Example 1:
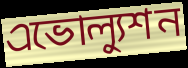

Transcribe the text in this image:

এভোল্যুশন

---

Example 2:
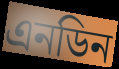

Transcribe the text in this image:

এনডিন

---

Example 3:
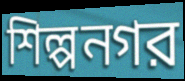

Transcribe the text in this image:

শিল্পনগর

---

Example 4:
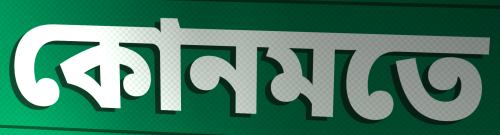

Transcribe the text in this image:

কোনমতে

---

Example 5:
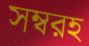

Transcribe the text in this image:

সম্বরহ